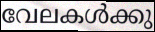
വേലകൾക്കു